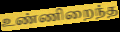
உண்ணிறைந்த